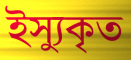
ইস্যুকৃত